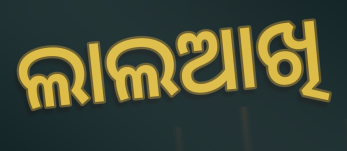
ଲାଲଆଖି